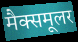
मैक्समूलर